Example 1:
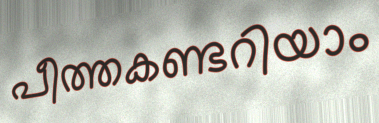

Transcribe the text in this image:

പീത്തകണ്ടറിയാം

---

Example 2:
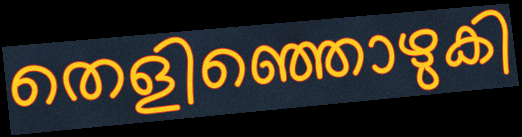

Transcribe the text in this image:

തെളിഞ്ഞൊഴുകി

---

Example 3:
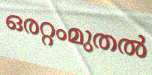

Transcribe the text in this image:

ഒരറ്റംമുതൽ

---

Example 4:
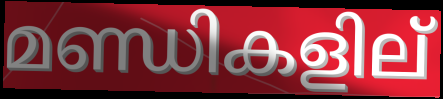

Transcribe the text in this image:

മണ്ഡികളില്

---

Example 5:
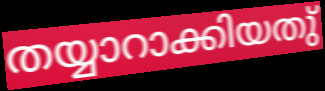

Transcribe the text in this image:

തയ്യാറാക്കിയതു്